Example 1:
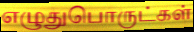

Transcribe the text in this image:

எழுதுபொருட்கள்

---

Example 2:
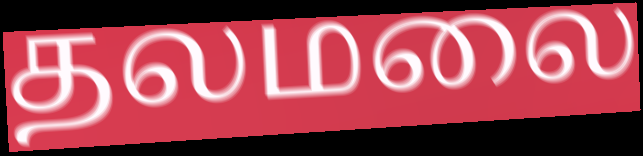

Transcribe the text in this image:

தலமலை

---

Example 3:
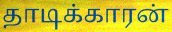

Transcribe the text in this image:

தாடிக்காரன்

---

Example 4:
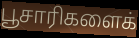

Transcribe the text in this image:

பூசாரிகளைக்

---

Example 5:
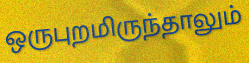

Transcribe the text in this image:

ஒருபுறமிருந்தாலும்